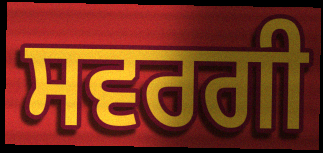
ਸਵਰਗੀ